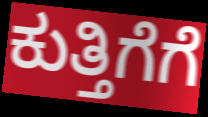
ಕುತ್ತಿಗೆಗೆ